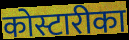
कोस्टारीका